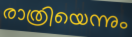
രാത്രിയെന്നും